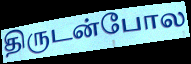
திருடன்போல